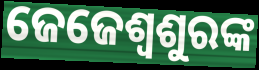
ଜେଜେଶ୍ୱଶୁରଙ୍କ